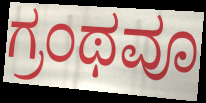
ಗ್ರಂಥವೂ